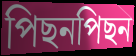
পিছনপিছন